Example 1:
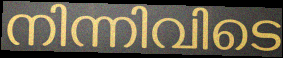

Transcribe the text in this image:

നിന്നിവിടെ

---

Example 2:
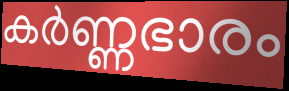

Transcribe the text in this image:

കർണ്ണഭാരം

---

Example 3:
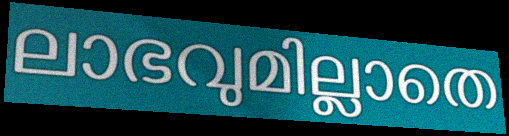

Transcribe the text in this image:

ലാഭവുമില്ലാതെ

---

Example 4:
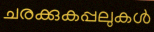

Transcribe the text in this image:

ചരക്കുകപ്പലുകൾ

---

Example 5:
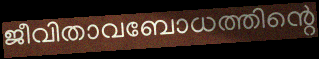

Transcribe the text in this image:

ജീവിതാവബോധത്തിന്റെ